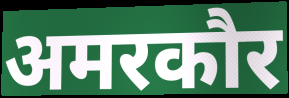
अमरकौर